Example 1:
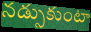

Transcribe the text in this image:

నడ్సుకుంటా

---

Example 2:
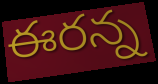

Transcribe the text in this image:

ఈరన్న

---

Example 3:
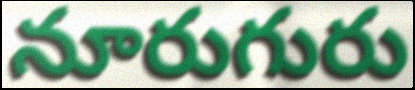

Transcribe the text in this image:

నూరుగురు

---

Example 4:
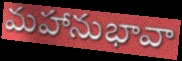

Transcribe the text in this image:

మహానుభావా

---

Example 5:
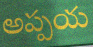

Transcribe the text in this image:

అప్పయ